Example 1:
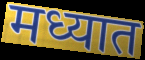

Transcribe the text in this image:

मध्यात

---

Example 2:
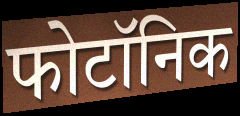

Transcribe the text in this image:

फोटॉनिक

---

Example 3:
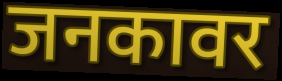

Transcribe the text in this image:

जनकावर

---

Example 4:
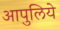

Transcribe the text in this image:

आपुलिये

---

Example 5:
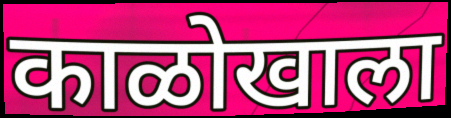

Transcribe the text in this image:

काळोखाला